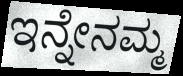
ಇನ್ನೇನಮ್ಮ